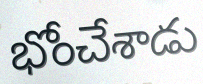
భోంచేశాడు